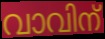
വാവിന്